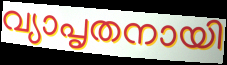
വ്യാപൃതനായി